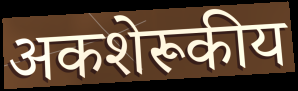
अकशेरूकीय